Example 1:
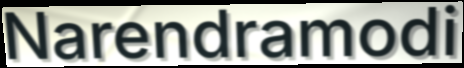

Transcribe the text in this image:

Narendramodi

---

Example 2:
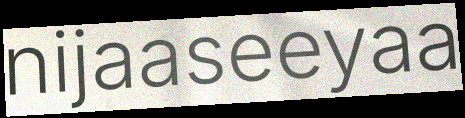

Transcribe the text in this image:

nijaaseeyaa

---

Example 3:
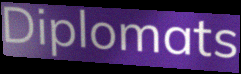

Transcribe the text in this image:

Diplomats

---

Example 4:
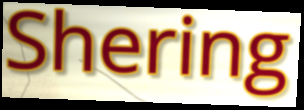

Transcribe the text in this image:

Shering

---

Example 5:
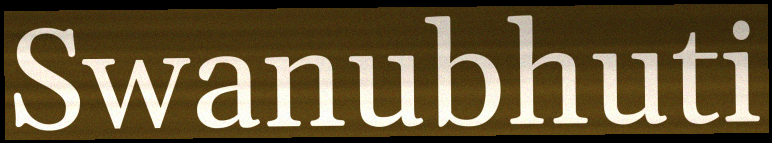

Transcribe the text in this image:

Swanubhuti